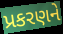
પ્રકરણને